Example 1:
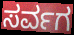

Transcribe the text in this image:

ಸರ್ವಗ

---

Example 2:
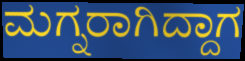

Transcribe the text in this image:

ಮಗ್ನರಾಗಿದ್ದಾಗ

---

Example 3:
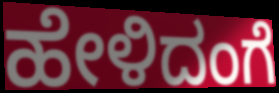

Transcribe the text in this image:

ಹೇಳಿದಂಗೆ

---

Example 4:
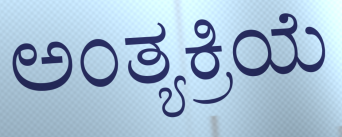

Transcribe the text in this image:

ಅಂತ್ಯಕ್ರಿಯೆ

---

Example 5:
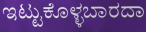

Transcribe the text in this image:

ಇಟ್ಟುಕೊಳ್ಳಬಾರದಾ